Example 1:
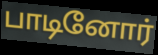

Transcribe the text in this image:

பாடினோர்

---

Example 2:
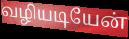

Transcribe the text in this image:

வழியடியேன்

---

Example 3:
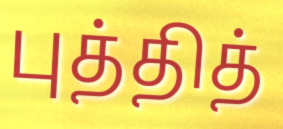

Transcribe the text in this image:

புத்தித்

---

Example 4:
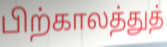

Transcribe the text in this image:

பிற்காலத்துத்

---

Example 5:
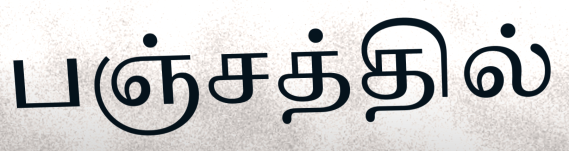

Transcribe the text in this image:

பஞ்சத்தில்